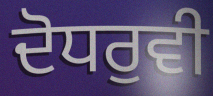
ਦੋਧਰੁਵੀ